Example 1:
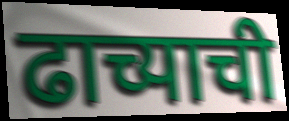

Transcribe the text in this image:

ढाच्याची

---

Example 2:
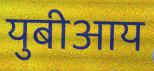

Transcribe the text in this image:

युबीआय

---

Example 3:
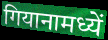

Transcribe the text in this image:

गियानामध्यें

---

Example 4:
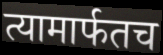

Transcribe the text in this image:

त्यामार्फतच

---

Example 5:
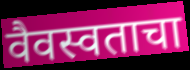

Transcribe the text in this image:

वैवस्वताचा